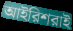
আইরিশরাই